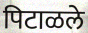
पिटाळले